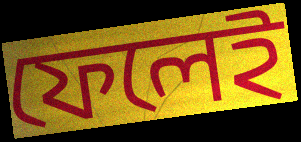
ফেলেই